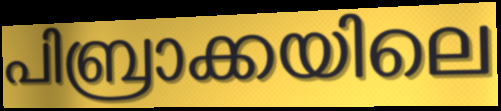
പിബ്രാക്കയിലെ